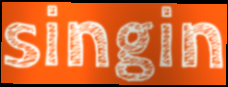
singin